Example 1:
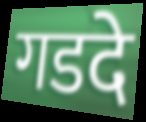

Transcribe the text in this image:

गडदे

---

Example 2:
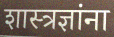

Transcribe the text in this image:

शास्त्रज्ञांना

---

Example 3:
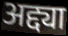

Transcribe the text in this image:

अद्द्या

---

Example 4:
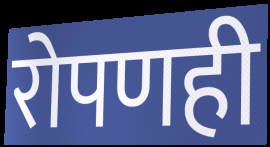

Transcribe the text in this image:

रोपणही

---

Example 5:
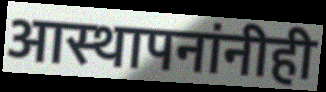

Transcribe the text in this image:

आस्थापनांनीही